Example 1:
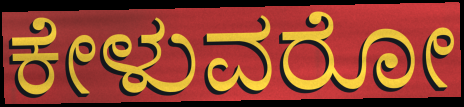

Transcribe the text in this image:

ಕೇಳುವರೋ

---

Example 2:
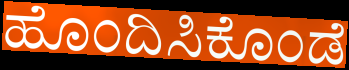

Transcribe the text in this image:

ಹೊಂದಿಸಿಕೊಂಡೆ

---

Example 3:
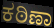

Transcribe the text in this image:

ಕಠಿಣಾ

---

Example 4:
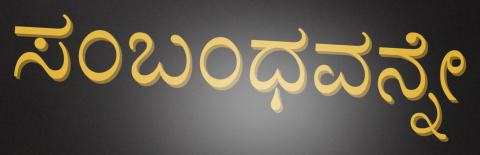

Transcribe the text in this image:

ಸಂಬಂಧವನ್ನೇ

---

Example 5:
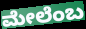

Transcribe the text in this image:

ಮೇಲೆಂಬ